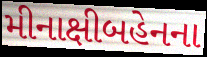
મીનાક્ષીબહેનના